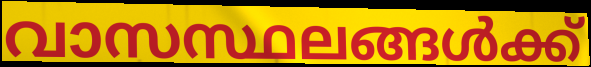
വാസസ്ഥലങ്ങൾക്ക്